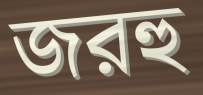
জরহু